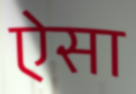
ऐेसा